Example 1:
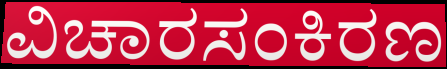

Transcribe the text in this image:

ವಿಚಾರಸಂಕಿರಣ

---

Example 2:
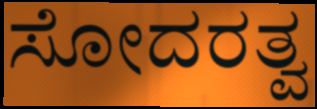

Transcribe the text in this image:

ಸೋದರತ್ವ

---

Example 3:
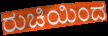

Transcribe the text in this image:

ರುಚಿಯಿಂದ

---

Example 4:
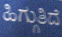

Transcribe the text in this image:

ಹಿಗ್ಗುತಿದೆ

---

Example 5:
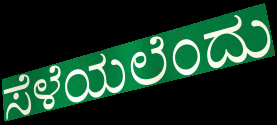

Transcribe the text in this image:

ಸೆಳೆಯಲೆಂದು